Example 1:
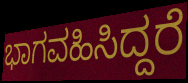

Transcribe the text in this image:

ಭಾಗವಹಿಸಿದ್ದರೆ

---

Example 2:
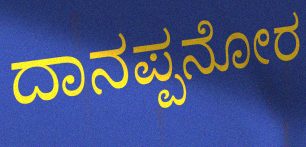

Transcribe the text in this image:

ದಾನಪ್ಪನೋರ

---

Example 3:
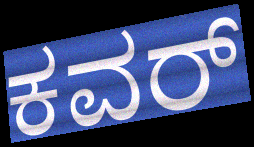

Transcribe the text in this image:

ಕವರ್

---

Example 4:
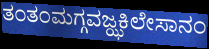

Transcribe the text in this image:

ತಂತಂಮಗ್ಗವಜ್ಝಕಿಲೇಸಾನಂ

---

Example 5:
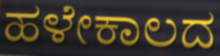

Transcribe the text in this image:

ಹಳೇಕಾಲದ